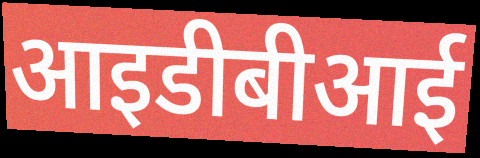
आइडीबीआई